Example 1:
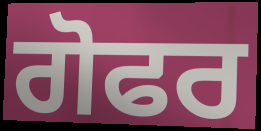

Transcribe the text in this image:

ਗੋਫਰ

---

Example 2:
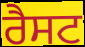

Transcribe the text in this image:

ਰੈਸਟ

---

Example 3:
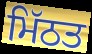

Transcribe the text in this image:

ਮਿੱਠਤ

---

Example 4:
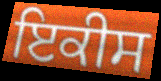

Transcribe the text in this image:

ਇਕੀਸ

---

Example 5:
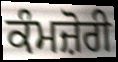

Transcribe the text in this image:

ਕੰਮਜ਼ੋਰੀ